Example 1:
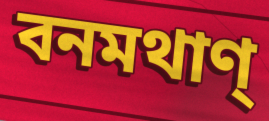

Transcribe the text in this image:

বনমথাণ্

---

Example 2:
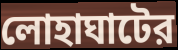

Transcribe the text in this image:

লোহাঘাটের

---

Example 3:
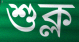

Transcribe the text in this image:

শুক্ল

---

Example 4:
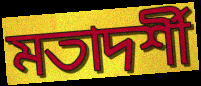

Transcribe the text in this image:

মতাদর্শী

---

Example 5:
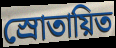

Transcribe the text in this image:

স্রোতায়িত